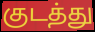
குடத்து